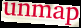
unmap